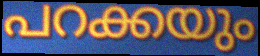
പറക്കയും